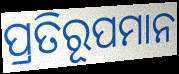
ପ୍ରତିରୂପମାନ